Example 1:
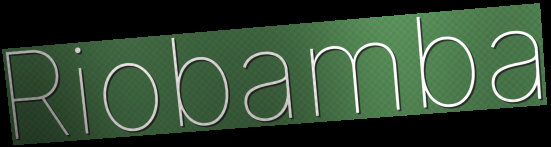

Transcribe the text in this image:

Riobamba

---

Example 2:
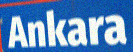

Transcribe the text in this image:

Ankara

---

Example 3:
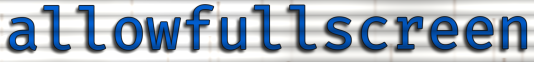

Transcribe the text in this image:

allowfullscreen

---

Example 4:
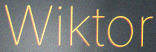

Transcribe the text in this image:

Wiktor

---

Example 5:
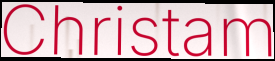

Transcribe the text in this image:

Christam